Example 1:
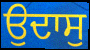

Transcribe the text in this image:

ਉਦਾਸੁ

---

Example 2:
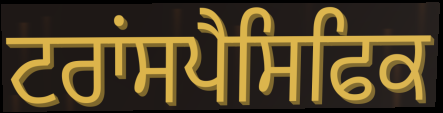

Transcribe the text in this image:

ਟਰਾਂਸਪੈਸਿਫਿਕ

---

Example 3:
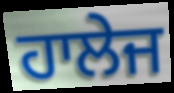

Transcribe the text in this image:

ਹਾਲੇਜ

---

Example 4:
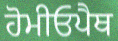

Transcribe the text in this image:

ਹੋਮੀਓਪੈਥ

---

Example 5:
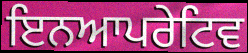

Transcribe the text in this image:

ਇਨਆਪਰੇਟਿਵ